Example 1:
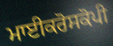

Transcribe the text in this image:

ਮਾਈਕਰੋਸਕੋਪੀ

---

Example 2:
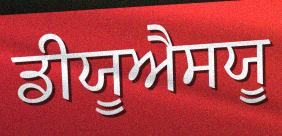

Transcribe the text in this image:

ਡੀਯੂਐਸਯੂ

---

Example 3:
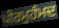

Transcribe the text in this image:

ਪੀਰਮੁਹੰਮਦ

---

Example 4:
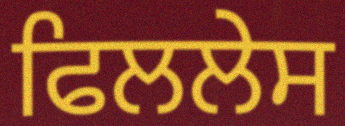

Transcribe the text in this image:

ਫਿਲਲੇਸ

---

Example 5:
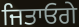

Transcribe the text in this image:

ਜਿਤਾਓਗੇ